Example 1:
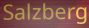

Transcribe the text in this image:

Salzberg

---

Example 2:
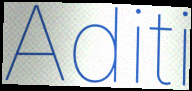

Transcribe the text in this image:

Aditi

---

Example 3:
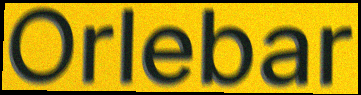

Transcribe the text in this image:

Orlebar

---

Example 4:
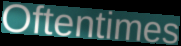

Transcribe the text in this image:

Oftentimes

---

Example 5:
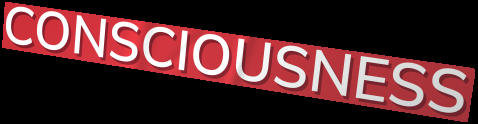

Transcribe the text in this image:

CONSCIOUSNESS